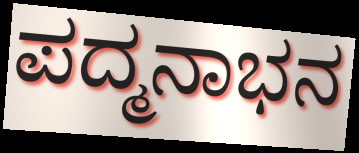
ಪದ್ಮನಾಭನ